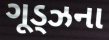
ગૂડ્ઝના